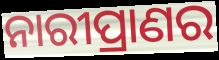
ନାରୀପ୍ରାଣର